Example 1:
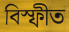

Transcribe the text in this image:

বিস্ফীত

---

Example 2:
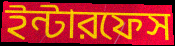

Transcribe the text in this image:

ইন্টারফেস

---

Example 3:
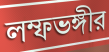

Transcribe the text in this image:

লম্ফভঙ্গীর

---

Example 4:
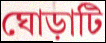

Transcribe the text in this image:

ঘোড়াটি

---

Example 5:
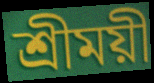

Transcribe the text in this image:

শ্রীময়ী